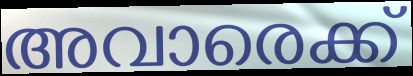
അവാരെക്ക്